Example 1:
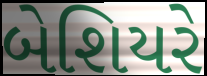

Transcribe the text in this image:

બેશિયરે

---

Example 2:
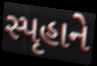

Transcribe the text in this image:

સ્પૃહાને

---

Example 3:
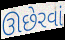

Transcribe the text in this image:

ઊછેરવાં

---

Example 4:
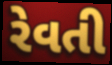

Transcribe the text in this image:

રેવતી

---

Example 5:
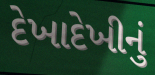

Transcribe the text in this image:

દેખાદેખીનું